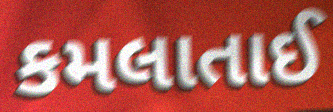
કમલાતાઈ